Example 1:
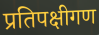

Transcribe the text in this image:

प्रतिपक्षीगण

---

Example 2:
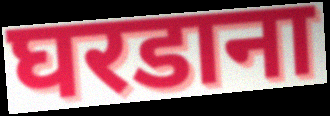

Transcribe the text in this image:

घरडाना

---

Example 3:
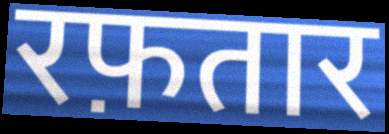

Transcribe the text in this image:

रफ़तार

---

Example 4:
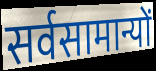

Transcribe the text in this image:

सर्वसामान्यों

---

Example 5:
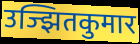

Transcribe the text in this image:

उज्झितकुमार